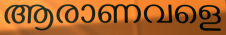
ആരാണവളെ